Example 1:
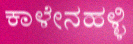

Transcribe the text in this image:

ಕಾಳೇನಹಳ್ಳಿ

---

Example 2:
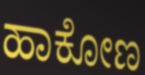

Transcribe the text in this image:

ಹಾಕೋಣ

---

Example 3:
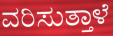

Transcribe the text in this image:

ವರಿಸುತ್ತಾಳೆ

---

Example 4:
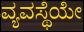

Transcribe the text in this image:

ವ್ಯವಸ್ಥೆಯೇ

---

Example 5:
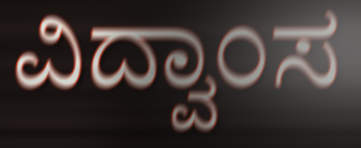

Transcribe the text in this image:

ವಿದ್ವಾಂಸ